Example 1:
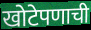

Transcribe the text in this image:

खोटेपणाची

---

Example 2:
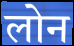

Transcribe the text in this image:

लोन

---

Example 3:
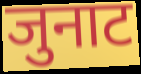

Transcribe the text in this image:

जुनाट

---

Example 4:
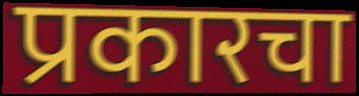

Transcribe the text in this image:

प्रकारचा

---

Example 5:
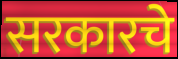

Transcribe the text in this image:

सरकारचे